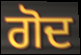
ਗੋਦ